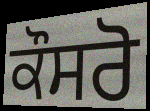
ਕੌਸਰੋ